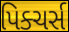
પિક્ચર્સ